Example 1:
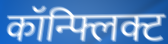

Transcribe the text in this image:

कॉन्फ्लिक्ट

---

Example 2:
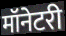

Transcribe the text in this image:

मॉनेटरी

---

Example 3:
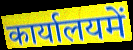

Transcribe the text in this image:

कार्यालयमें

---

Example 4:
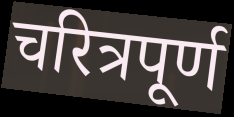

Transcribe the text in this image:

चरित्रपूर्ण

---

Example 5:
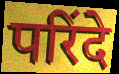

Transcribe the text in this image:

परिंदे